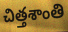
చిత్తశాంతి